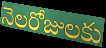
నెలరోజులకు